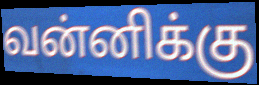
வன்னிக்கு